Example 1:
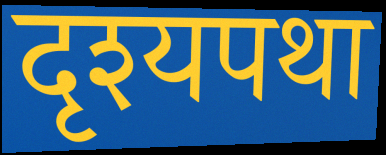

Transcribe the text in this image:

दृश्यपथा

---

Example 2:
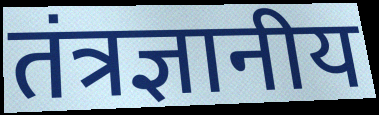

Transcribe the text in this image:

तंत्रज्ञानीय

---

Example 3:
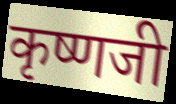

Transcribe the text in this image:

कृष्णजी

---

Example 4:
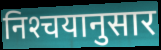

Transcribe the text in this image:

निश्चयानुसार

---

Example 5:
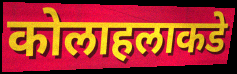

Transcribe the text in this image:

कोलाहलाकडे